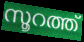
സൂറത്ത്